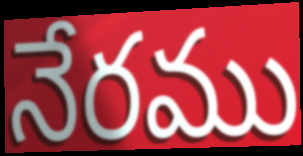
నేరము